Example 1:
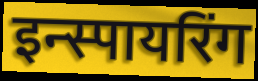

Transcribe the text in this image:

इन्स्पायरिंग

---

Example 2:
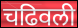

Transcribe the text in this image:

चढिवली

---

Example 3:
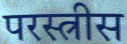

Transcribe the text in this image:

परस्त्रीस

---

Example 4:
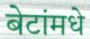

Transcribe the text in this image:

बेटांमधे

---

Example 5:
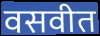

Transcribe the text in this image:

वसवीत